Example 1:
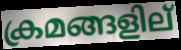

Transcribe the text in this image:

ക്രമങ്ങളില്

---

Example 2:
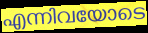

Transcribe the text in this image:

എന്നിവയോടെ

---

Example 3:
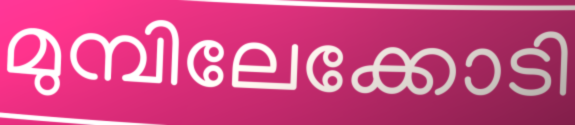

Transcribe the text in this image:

മുമ്പിലേക്കോടി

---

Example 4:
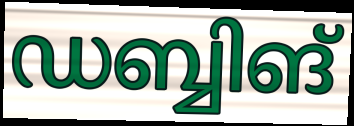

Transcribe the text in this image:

ഡബ്ബിങ്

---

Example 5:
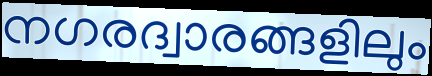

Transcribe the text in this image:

നഗരദ്വാരങ്ങളിലും